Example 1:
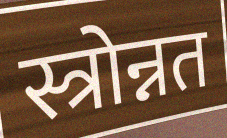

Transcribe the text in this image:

स्त्रोन्नत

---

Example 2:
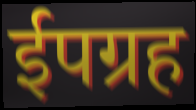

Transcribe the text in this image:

ईपग्रह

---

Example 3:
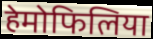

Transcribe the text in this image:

हेमोफिलिया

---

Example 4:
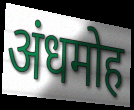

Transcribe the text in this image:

अंधमोह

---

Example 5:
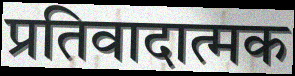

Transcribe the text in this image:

प्रतिवादात्मक